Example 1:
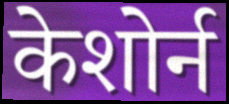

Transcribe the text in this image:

केशोर्न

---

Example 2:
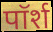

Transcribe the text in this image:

पॉर्श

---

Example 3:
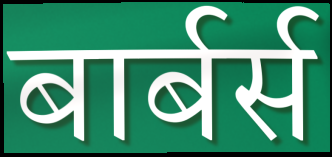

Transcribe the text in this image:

बार्बर्स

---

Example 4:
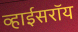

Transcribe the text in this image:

व्हाईसरॉय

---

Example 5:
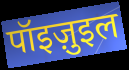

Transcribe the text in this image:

पॉइज़ुइल